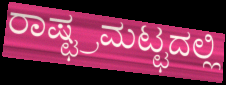
ರಾಷ್ಟ್ರಮಟ್ಟದಲ್ಲಿ